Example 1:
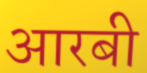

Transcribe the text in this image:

आरबी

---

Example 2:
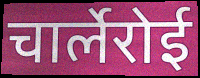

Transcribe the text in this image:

चार्लेरोई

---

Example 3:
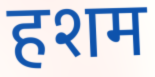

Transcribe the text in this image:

हशम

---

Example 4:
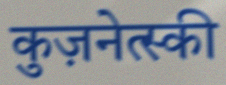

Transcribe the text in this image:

कुज़नेत्स्की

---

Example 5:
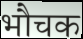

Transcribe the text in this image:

भौचक